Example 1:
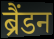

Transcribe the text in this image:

ब्रैंडन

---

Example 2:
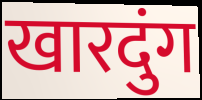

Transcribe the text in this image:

खारदुंग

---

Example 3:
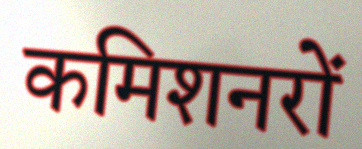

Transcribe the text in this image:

कमिशनरों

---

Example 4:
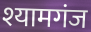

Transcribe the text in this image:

श्यामगंज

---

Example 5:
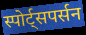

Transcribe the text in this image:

स्पोर्ट्सपर्सन